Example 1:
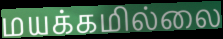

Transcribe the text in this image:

மயக்கமில்லை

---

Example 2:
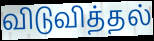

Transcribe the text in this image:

விடுவித்தல்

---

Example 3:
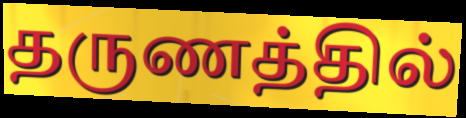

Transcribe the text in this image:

தருணத்தில்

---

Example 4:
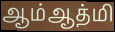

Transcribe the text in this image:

ஆம்ஆத்மி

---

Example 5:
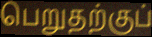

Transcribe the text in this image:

பெறுதற்குப்